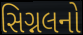
સિગ્નલનો